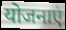
योजनाएं